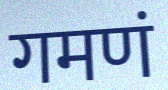
गमणं